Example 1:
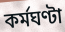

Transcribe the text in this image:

কৰ্মঘণ্টা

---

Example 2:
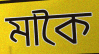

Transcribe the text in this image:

মাকৈ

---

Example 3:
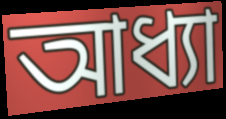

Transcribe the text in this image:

আধ্যা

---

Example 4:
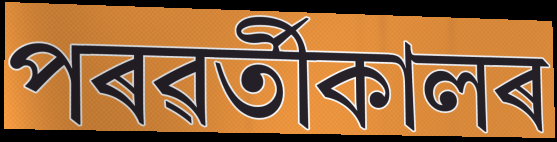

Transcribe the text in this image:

পৰৱৰ্তীকালৰ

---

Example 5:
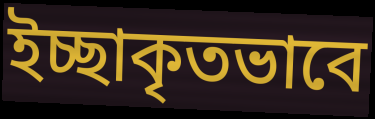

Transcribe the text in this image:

ইচ্ছাকৃতভাবে